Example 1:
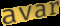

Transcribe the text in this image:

avar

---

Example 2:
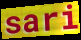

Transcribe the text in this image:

sari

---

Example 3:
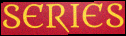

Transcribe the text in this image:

SERIES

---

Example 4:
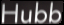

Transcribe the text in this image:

Hubb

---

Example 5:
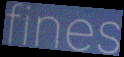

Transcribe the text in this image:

fines